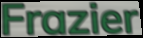
Frazier